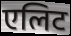
एलिट